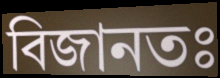
বিজানতঃ